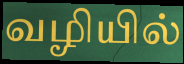
வழியில்